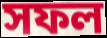
সফল